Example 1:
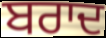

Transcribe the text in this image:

ਬਰਾਦ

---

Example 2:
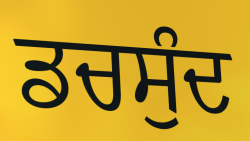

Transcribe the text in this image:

ਡਚਸੁੰਦ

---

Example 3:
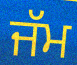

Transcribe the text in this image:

ਜੱਮ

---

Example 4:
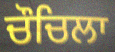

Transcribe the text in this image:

ਚੌਚਿਲਾ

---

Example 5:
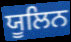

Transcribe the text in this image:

ਯੂਲਿਨ